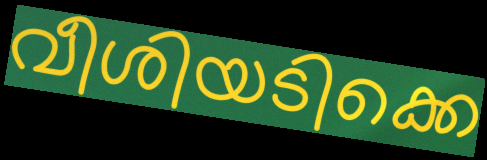
വീശിയടിക്കെ